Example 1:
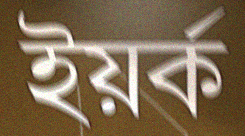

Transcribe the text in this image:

ইয়র্ক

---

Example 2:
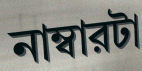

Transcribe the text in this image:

নাম্বারটা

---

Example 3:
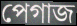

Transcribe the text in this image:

পেগাজ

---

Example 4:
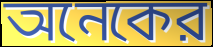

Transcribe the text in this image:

অনেকের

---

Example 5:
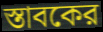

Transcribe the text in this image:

স্তাবকের